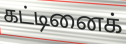
கட்டினைக்